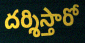
దర్శిస్తారో